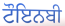
ਟੌਇਨਬੀ